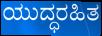
ಯುದ್ಧರಹಿತ